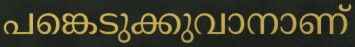
പങ്കെടുക്കുവാനാണ്